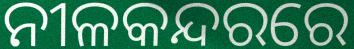
ନୀଳକନ୍ଦରରେ